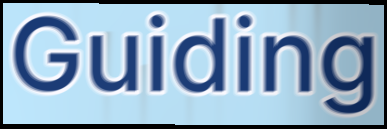
Guiding